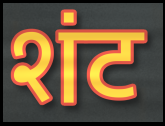
शंट